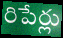
రిపేర్లు